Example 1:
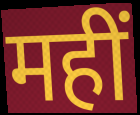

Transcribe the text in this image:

महीं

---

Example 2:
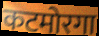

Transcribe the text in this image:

कटमोरगा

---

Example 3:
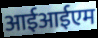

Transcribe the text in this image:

आईआईएम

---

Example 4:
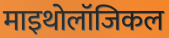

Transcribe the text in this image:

माइथोलॉजिकल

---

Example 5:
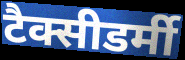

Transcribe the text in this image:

टैक्सीडर्मी